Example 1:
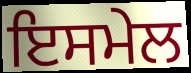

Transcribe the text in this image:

ਇਸਮੇਲ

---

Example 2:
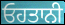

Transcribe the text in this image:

ਓਹਤਾਨੀ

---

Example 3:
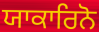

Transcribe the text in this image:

ਯਾਕਾਰਿਨੋ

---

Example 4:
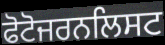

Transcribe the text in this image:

ਫੋਟੋਜਰਨਲਿਸਟ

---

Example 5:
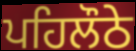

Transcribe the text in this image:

ਪਹਿਲੌਠੇ